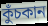
কুঁচকান